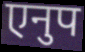
एनुप